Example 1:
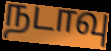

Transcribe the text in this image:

நடாவு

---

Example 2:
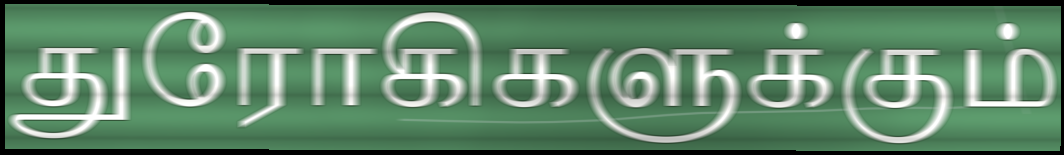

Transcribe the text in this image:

துரோகிகளுக்கும்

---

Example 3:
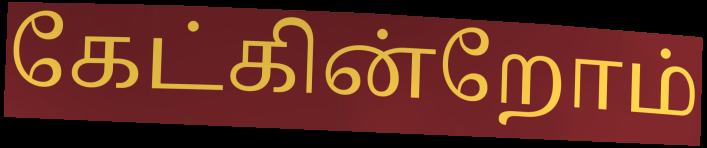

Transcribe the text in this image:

கேட்கின்றோம்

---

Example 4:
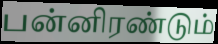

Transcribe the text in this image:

பன்னிரண்டும்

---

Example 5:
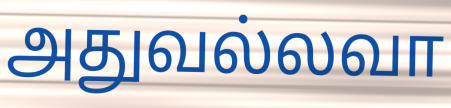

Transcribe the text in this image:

அதுவல்லவா